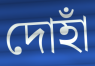
দোহাঁ